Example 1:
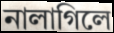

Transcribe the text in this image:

নালাগিলে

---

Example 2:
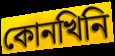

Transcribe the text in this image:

কোনখিনি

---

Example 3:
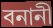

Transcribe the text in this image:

বনানী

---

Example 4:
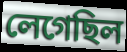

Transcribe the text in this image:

লেগেছিল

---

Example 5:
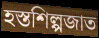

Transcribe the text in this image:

হস্তশিল্পজাত